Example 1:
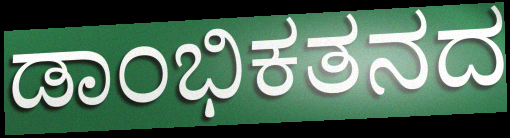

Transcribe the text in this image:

ಡಾಂಭಿಕತನದ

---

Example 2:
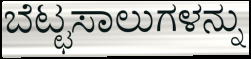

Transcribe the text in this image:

ಬೆಟ್ಟಸಾಲುಗಳನ್ನು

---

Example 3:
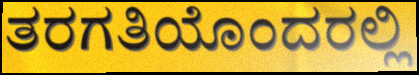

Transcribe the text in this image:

ತರಗತಿಯೊಂದರಲ್ಲಿ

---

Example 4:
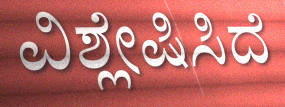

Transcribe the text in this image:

ವಿಶ್ಲೇಷಿಸಿದೆ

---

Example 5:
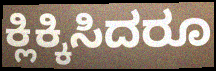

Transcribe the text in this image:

ಕ್ಲಿಕ್ಕಿಸಿದರೂ